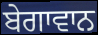
ਬੇਗਾਵਾਨ